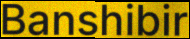
Banshibir